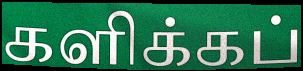
களிக்கப்